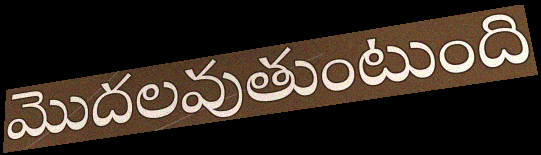
మొదలవుతుంటుంది